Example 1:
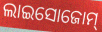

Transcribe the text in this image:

ଲାଇସୋଜୋମ୍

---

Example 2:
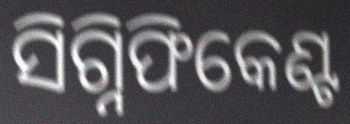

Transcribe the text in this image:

ସିଗ୍ନିଫିକେଣ୍ଟ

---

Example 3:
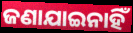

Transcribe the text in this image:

ଜଣାଯାଇନାହିଁ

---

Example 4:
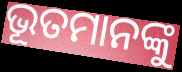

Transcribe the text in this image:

ଭୂତମାନଙ୍କୁ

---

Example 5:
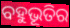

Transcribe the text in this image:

ବହୁଭୂତିର